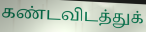
கண்டவிடத்துக்